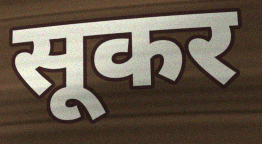
सूकर